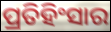
ପ୍ରତିହିଂସାର